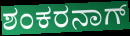
ಶಂಕರನಾಗ್